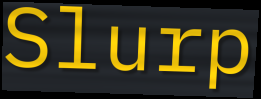
Slurp